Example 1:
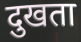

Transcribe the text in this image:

दुखता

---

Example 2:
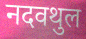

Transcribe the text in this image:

नदवथुल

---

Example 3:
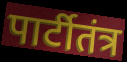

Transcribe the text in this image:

पार्टीतंत्र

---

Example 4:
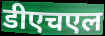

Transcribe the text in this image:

डीएचएल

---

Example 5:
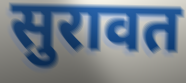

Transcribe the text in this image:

सुरावत